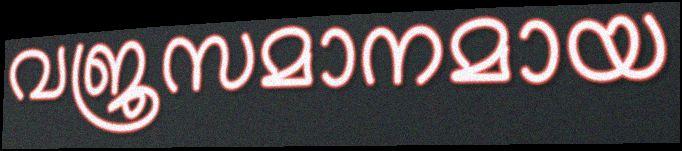
വജ്രസമാനമായ